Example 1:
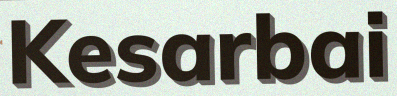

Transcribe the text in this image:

Kesarbai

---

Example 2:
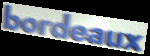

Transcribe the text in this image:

bordeaux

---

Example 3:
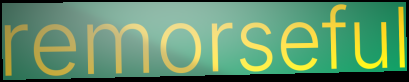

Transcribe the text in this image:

remorseful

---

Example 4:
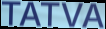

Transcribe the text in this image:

TATVA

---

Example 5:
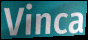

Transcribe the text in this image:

Vinca